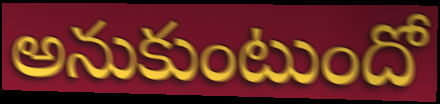
అనుకుంటుందో